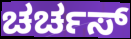
ಚರ್ಚಸ್